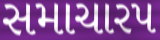
સમાચારપ